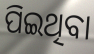
ପିଇଥିବା